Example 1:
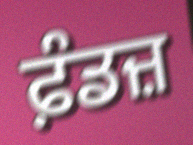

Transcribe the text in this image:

ਫ਼ੰਡਜ਼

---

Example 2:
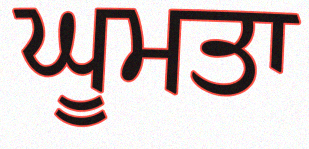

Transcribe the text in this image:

ਘੂਮਤਾ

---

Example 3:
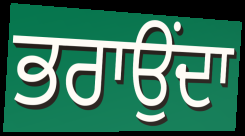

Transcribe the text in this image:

ਭਰਾਉਂਦਾ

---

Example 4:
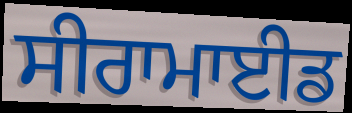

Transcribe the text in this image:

ਸੀਰਾਮਾਈਡ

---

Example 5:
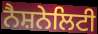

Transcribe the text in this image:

ਨੈਸ਼ਨੇਲਿਟੀ